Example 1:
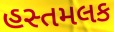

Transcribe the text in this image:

હસ્તમલક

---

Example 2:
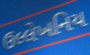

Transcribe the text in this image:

ઉલ્લેખનિય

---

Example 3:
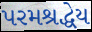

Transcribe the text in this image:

પરમશ્રદ્ધેય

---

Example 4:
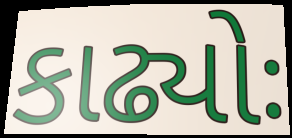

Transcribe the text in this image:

કાઢ્યોઃ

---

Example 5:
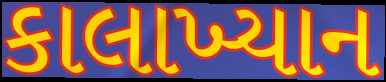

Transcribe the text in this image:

કાલાખ્યાન